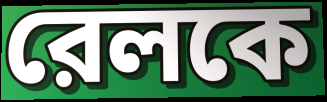
রেলকে